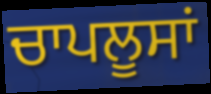
ਚਾਪਲੂਸਾਂ